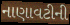
નાણાવટીની